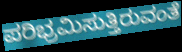
ಪರಿಭ್ರಮಿಸುತ್ತಿರುವಂತೆ